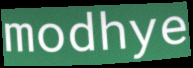
modhye